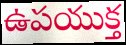
ఉపయుక్త